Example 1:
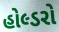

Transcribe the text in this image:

હોલ્ડરો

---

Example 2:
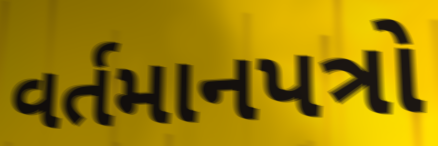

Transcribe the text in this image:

વર્તમાનપત્રો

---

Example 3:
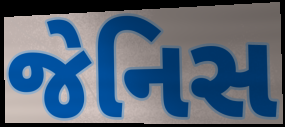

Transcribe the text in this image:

જેનિસ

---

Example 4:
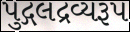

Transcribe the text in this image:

પુદ્ગલદ્રવ્યરૂપ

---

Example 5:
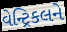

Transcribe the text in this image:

વેન્ટ્રિકલને